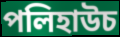
পলিহাউচ